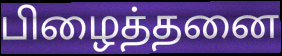
பிழைத்தனை